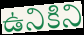
ఉనికిని